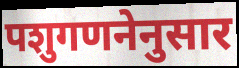
पशुगणनेनुसार